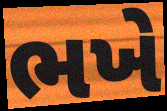
ભખે